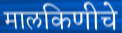
मालकिणीचे